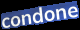
condone